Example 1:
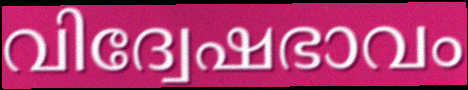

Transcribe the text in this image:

വിദ്വേഷഭാവം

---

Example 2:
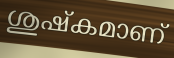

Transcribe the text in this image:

ശുഷ്‌കമാണ്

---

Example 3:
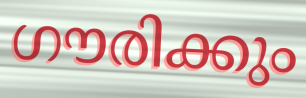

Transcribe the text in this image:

ഗൗരിക്കും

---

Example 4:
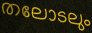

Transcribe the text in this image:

തലോടലും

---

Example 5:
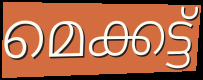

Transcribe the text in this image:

മെക്കട്ട്